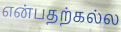
என்பதற்கல்ல